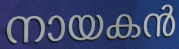
നായകൻ